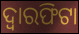
ଦ୍ୱାରଫିଟା